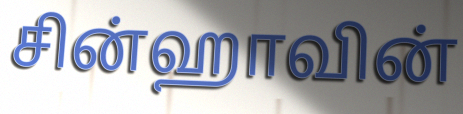
சின்ஹாவின்